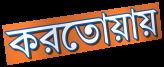
করতোয়ায়